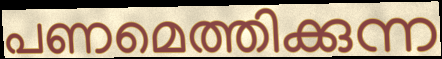
പണമെത്തിക്കുന്ന